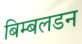
बिम्बलडन